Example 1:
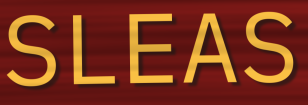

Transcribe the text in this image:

SLEAS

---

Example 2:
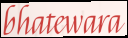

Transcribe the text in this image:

bhatewara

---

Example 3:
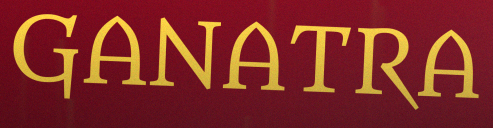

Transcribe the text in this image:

GANATRA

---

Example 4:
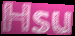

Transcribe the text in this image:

Hsu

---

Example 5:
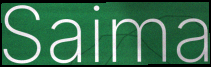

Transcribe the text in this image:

Saima